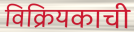
विक्रियकाची